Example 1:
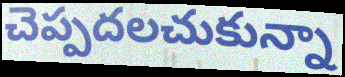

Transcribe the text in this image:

చెప్పదలచుకున్నా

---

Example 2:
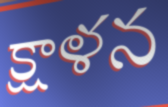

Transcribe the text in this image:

క్షాళన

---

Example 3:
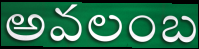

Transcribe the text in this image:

అవలంబ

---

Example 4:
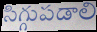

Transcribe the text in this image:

సిగ్గుపడాలి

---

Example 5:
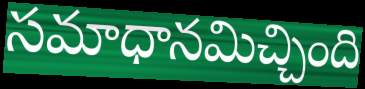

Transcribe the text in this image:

సమాధానమిచ్చింది